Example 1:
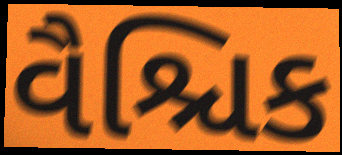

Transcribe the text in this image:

વૈશ્ચિક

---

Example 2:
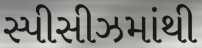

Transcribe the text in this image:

સ્પીસીઝમાંથી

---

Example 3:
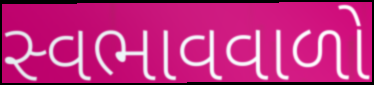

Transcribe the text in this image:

સ્વભાવવાળો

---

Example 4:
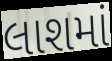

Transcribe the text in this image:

લાશમાં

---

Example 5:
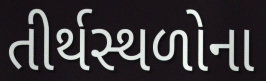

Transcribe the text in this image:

તીર્થસ્થળોના